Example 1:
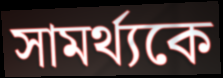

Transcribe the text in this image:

সামর্থ্যকে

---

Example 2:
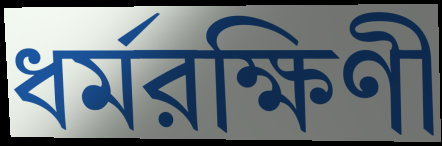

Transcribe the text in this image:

ধর্মরক্ষিণী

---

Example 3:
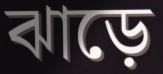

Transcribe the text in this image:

ঝাড়ে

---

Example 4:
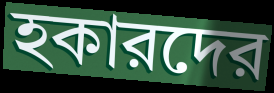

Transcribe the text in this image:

হকারদের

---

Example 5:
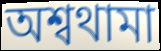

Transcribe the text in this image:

অশ্বথামা